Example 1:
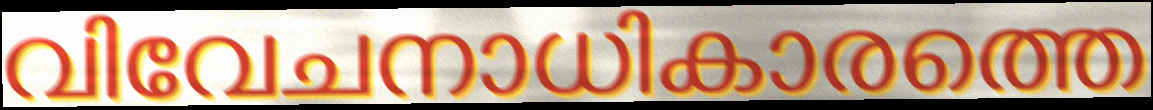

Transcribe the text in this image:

വിവേചനാധികാരത്തെ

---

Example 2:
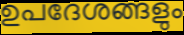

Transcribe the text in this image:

ഉപദേശങ്ങളും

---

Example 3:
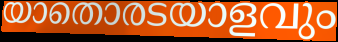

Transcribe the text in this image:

യാതൊരടയാളവും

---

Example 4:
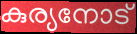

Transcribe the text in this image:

കുര്യനോട്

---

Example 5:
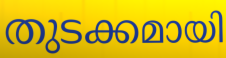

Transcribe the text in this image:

തുടക്കമായി